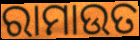
ରାମାଉତ